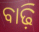
ବାଢ଼ି